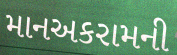
માનઅકરામની